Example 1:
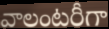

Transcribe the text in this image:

వాలంటరీగా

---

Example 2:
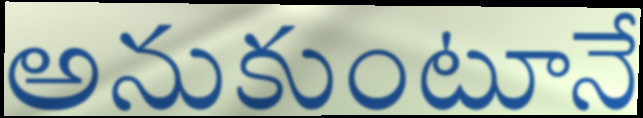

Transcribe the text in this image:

అనుకుంటూనే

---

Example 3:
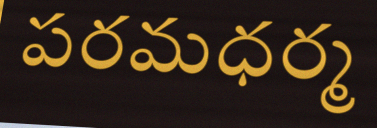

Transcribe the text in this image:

పరమధర్మ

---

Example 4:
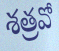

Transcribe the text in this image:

శత్రవో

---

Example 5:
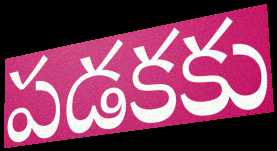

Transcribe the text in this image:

పడకకు